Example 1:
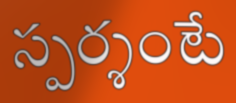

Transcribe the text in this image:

స్పర్శంటే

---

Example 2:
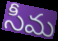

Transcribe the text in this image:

సీమ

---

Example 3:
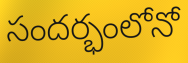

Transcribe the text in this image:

సందర్భంలోనో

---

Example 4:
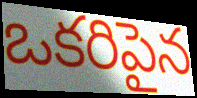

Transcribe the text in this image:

ఒకరిపైన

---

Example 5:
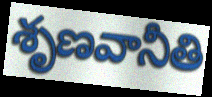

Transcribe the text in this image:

శృణవానీతి